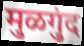
मुळगुंद